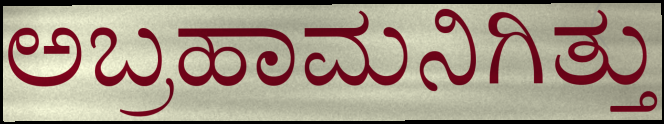
ಅಬ್ರಹಾಮನಿಗಿತ್ತು